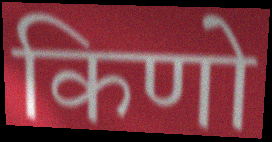
किणो